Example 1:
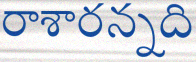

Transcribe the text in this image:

రాశారన్నది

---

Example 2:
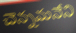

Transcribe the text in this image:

చెన్నమనేని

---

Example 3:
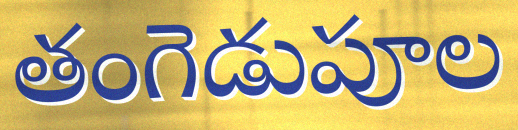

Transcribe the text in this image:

తంగెడుపూల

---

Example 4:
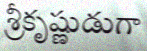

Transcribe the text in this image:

శ్రీకృష్ణుడుగా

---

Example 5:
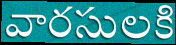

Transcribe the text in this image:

వారసులకి